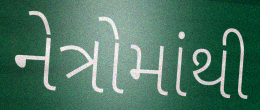
નેત્રોમાંથી